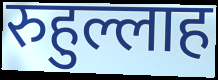
रुहुल्लाह